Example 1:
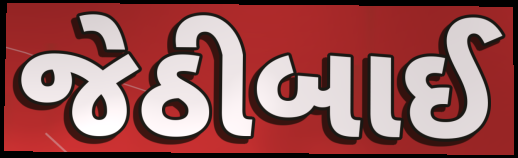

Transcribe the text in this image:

જેઠીબાઈ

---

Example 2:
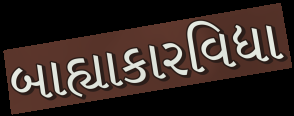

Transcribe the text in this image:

બાહ્યાકારવિદ્યા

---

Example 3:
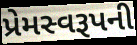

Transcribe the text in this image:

પ્રેમસ્વરૂપની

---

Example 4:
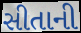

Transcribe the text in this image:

સીતાની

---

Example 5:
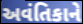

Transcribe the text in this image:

અવંતિકાને